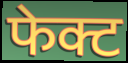
फेक्ट